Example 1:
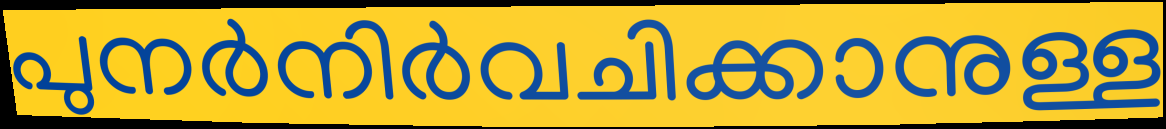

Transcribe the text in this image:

പുനർനിർവചിക്കാനുള്ള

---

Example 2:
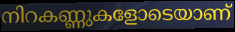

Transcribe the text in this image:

നിറകണ്ണുകളോടെയാണ്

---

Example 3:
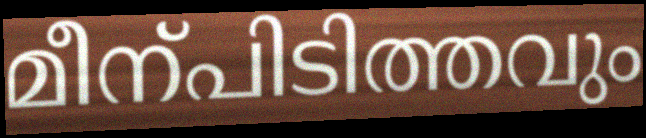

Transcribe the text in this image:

മീന്പിടിത്തവും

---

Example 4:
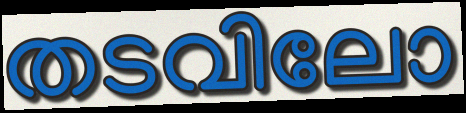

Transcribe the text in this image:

തടവിലോ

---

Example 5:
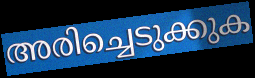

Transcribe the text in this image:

അരിച്ചെടുക്കുക